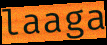
laaga